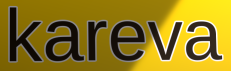
kareva